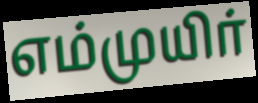
எம்முயிர்